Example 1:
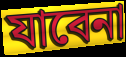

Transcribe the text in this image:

যাবেনা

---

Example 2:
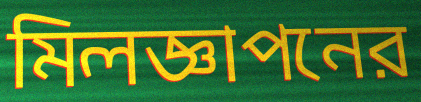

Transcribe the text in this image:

মিলজ্ঞাপনের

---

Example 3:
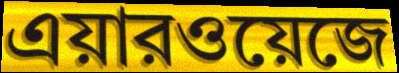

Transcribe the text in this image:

এয়ারওয়েজে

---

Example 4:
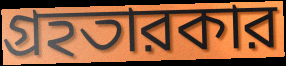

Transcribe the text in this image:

গ্রহতারকার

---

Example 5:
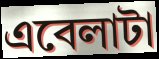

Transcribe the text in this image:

এবেলাটা